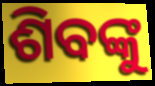
ଶିବଙ୍କୁ